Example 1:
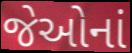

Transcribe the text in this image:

જેઓનાં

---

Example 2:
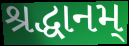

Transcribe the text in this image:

શ્રદ્ધાનમ્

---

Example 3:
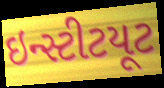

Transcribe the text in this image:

ઇન્સ્ટીટયૂટ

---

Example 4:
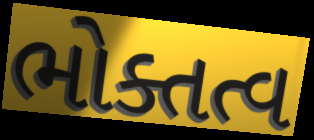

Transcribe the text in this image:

ભોક્તત્વ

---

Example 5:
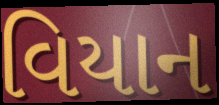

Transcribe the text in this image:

વિયાન